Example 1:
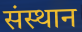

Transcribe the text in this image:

संस्थान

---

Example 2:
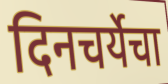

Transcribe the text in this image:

दिनचर्येचा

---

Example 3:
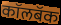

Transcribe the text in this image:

कॉलबॅक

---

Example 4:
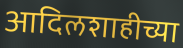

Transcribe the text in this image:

आदिलशाहीच्या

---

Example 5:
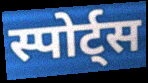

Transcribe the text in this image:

स्पोर्ट्स